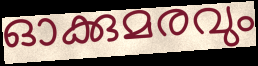
ഓക്കുമരവും